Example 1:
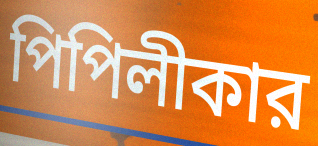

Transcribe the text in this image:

পিপিলীকার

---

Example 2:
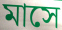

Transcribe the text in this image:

মাসে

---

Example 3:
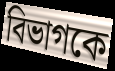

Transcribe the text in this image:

বিভাগকে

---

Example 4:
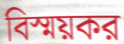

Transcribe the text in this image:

বিস্ময়কর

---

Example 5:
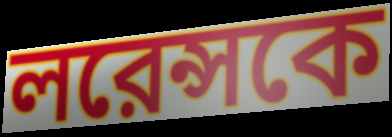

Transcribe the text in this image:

লরেন্সকে